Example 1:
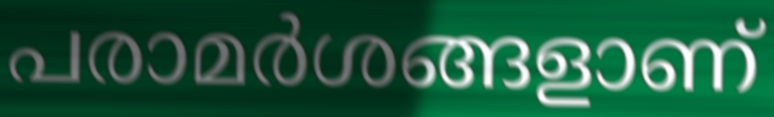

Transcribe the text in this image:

പരാമർശങ്ങളാണ്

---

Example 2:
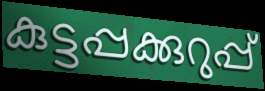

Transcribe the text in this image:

കുട്ടപ്പക്കുറുപ്പ്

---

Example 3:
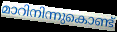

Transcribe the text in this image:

മാറിനിന്നുകൊണ്ട്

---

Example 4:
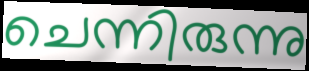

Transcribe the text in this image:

ചെന്നിരുന്നു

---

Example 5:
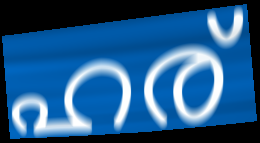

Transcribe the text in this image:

ഹര്